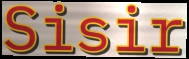
Sisir